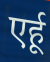
एर्हू